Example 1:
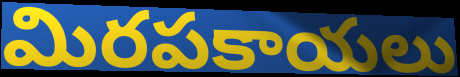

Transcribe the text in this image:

మిరపకాయలు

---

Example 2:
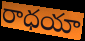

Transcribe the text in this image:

రాధయా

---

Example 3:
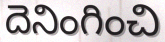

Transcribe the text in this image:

దెనింగించి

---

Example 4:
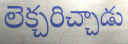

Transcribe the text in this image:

లెక్చరిచ్చాడు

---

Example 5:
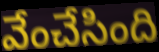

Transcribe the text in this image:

వేంచేసింది